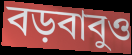
বড়বাবুও